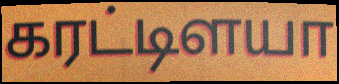
கரட்டிளயா